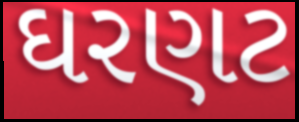
ઘરણટ